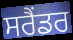
ਸਰੈਂਡਰ